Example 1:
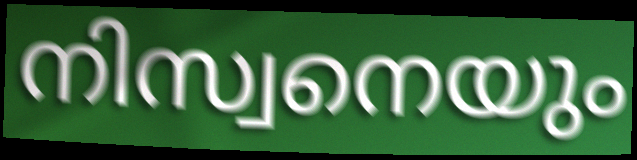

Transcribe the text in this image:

നിസ്വനെയും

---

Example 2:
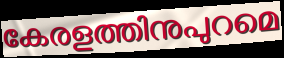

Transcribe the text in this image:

കേരളത്തിനുപുറമെ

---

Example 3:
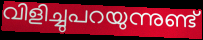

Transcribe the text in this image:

വിളിച്ചുപറയുന്നുണ്ട്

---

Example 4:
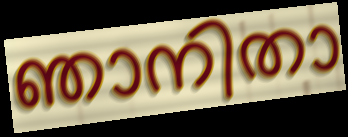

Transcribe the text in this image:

ഞാനിതാ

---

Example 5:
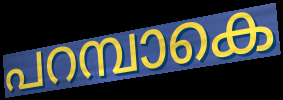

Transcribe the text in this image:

പറമ്പാകെ